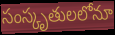
సంస్కృతులలోనూ